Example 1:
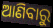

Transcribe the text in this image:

ଆଣିବାରୁ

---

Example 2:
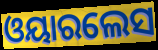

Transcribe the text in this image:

ଓୟାରଲେସ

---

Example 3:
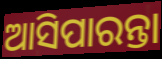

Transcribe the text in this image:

ଆସିପାରନ୍ତା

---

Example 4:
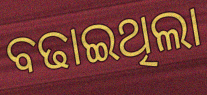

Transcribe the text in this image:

ବଢାଇଥିଲା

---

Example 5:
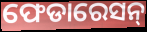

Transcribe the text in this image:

ଫେଡାରେସନ୍